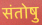
संतोषु